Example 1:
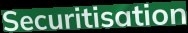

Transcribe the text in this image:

Securitisation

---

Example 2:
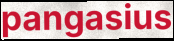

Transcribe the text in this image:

pangasius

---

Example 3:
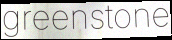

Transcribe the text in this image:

greenstone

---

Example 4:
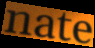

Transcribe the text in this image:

nate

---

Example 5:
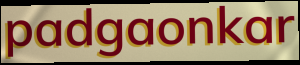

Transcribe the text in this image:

padgaonkar